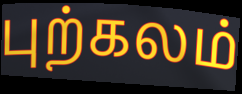
புற்கலம்